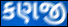
કણજી